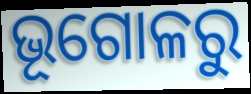
ଭୂଗୋଳରୁ